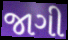
જાગી